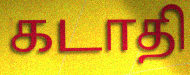
கடாதி